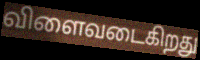
விளைவடைகிறது